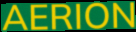
AERION